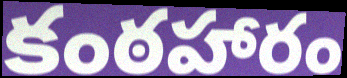
కంఠహారం